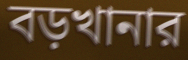
বড়খানার